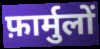
फ़ार्मुलों